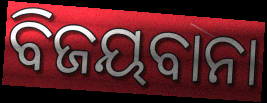
ବିଜୟବାନା